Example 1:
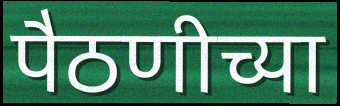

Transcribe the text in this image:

पैठणीच्या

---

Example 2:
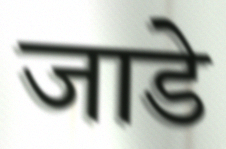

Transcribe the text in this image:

जाडे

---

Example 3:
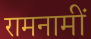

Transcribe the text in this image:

रामनामीं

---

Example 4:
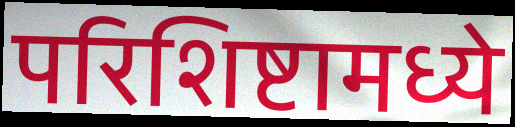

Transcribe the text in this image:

परिशिष्टामध्ये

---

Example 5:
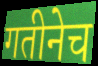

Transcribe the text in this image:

गतीनेच